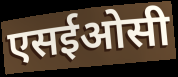
एसईओसी